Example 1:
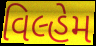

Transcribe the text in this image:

વિલ્હેમ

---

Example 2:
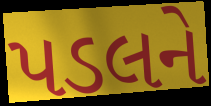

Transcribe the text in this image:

પડલને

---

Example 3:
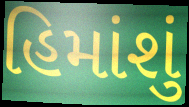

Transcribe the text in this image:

હિમાંશું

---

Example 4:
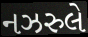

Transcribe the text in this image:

નઝરુલે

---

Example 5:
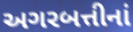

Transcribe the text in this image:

અગરબત્તીનાં